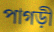
পাগড়ী